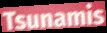
Tsunamis